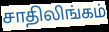
சாதிலிங்கம்